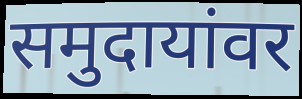
समुदायांवर